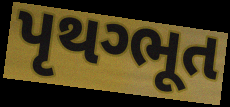
પૃથગ્ભૂત